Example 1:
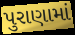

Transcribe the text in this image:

પુરાણામાં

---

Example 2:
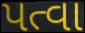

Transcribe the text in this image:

પત્વા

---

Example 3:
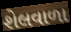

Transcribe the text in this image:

શેલવાળા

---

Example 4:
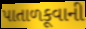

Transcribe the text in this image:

પાતાળકૂવાની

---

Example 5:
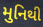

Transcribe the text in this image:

મુનિથી